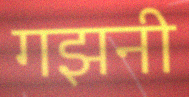
गझनी